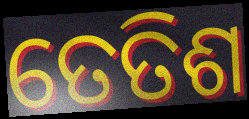
ତେତିଶ